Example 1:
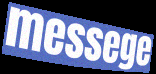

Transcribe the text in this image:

messege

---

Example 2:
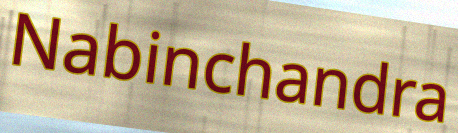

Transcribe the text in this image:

Nabinchandra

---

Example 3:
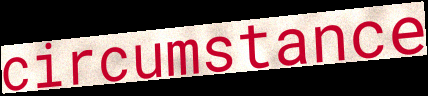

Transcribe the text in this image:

circumstance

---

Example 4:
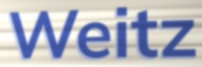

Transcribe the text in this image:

Weitz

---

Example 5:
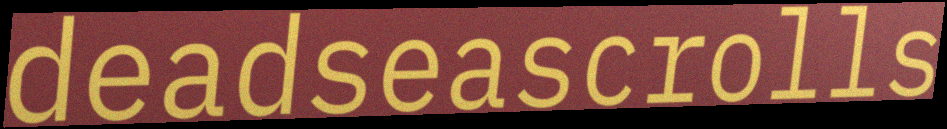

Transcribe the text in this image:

deadseascrolls